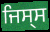
ਜਿਸ੍ਸ